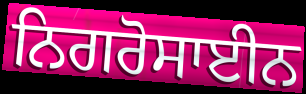
ਨਿਗਰੋਸਾਈਨ